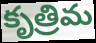
కృత్రిమ